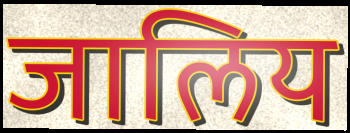
जालिय